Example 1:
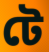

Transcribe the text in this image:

টে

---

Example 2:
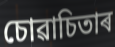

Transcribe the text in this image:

চোৱাচিতাৰ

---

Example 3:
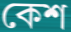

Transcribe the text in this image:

কেশ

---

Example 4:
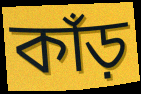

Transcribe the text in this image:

কাঁড়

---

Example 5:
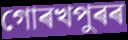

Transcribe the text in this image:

গোৰখপুৰৰ